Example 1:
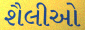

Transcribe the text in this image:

શૈલીઓ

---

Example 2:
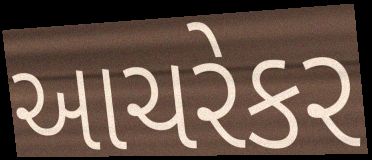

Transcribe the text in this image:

આચરેકર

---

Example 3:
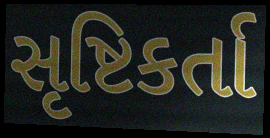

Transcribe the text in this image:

સૃષ્ટિકર્તા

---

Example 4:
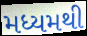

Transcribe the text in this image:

મધ્યમથી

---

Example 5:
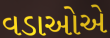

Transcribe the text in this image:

વડાઓએ